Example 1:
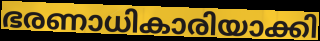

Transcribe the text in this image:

ഭരണാധികാരിയാക്കി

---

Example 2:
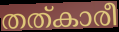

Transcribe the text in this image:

തത്കാരീ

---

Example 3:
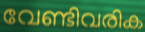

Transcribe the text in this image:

വേണ്ടിവരിക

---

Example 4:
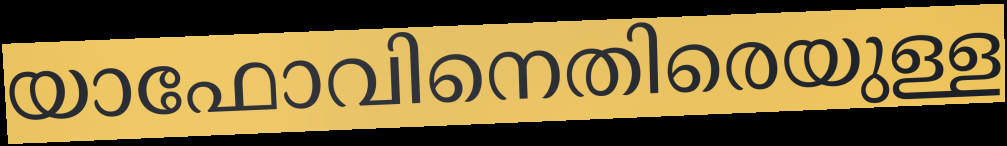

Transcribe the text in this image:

യാഫോവിനെതിരെയുള്ള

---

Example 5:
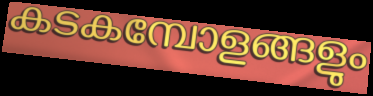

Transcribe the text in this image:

കടകമ്പോളങ്ങളും